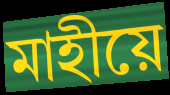
মাহীয়ে